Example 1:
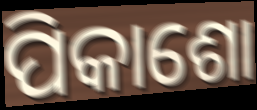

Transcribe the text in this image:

ପିକାଶୋ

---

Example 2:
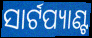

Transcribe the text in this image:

ସାର୍ଟପ୍ୟାଣ୍ଟ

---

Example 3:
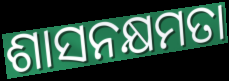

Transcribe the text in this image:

ଶାସନକ୍ଷମତା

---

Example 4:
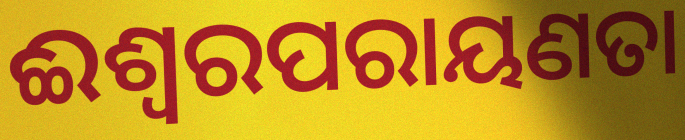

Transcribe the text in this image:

ଈଶ୍ୱରପରାୟଣତା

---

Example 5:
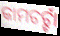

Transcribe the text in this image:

କାମଚର୍ଚ୍ଚା